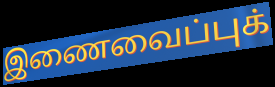
இணைவைப்புக்